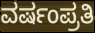
ವರ್ಷಂಪ್ರತಿ